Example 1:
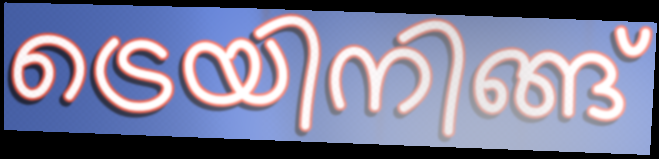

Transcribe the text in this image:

ട്രെയിനിങ്ങ്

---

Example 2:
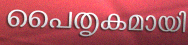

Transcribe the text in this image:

പൈതൃകമായി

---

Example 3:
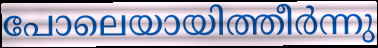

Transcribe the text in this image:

പോലെയായിത്തീർന്നു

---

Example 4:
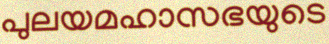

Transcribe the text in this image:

പുലയമഹാസഭയുടെ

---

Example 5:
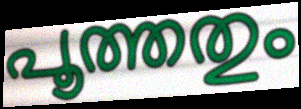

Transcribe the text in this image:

പൂത്തതും